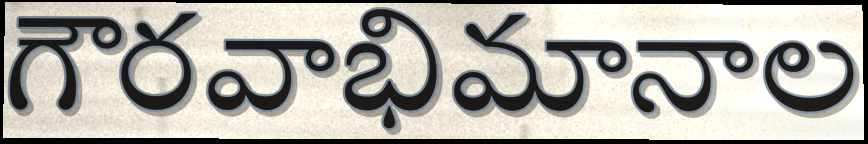
గౌరవాభిమానాల